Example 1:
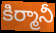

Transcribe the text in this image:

కిర్మానీ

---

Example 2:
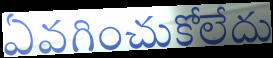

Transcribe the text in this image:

ఏవగించుకోలేదు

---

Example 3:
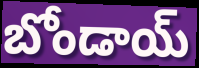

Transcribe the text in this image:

బోండాయ్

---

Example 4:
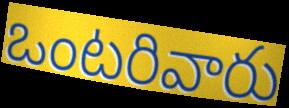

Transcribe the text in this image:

ఒంటరివారు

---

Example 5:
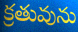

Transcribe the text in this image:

క్రతువును